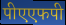
पीएएफपी